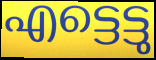
എട്ടെട്ടു